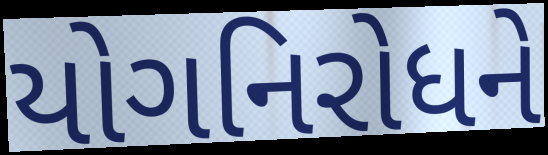
યોગનિરોધને